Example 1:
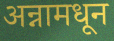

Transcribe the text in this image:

अन्नामधून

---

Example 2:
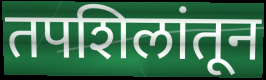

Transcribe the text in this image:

तपशिलांतून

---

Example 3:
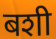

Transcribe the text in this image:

बशी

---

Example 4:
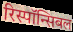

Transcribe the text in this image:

रिस्पॉन्सिबल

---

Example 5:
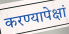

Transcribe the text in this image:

करण्यापेक्षां